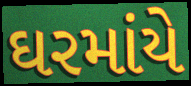
ઘરમાંયે